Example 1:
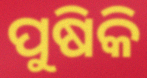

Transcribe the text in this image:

ପୁଷିକି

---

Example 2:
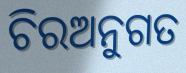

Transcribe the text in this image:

ଚିରଅନୁଗତ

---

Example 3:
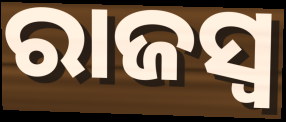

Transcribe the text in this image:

ରାଜସ୍ୱ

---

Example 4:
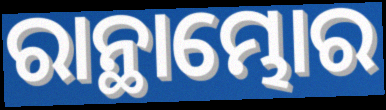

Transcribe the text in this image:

ରାନ୍ଥାମ୍ଭୋର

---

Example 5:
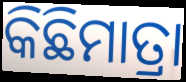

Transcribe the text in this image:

କିଛିମାତ୍ରା